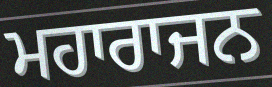
ਮਹਾਰਾਜਨ